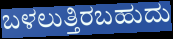
ಬಳಲುತ್ತಿರಬಹುದು